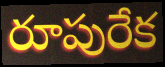
రూపురేక